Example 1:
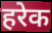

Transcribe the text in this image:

हरेक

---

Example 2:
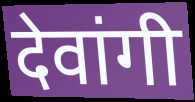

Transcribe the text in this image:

देवांगी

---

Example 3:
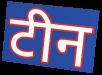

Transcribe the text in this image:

टीन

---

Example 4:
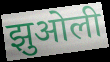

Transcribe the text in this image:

झुओली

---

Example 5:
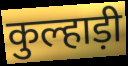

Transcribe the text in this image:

कुल्‍हाड़ी